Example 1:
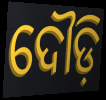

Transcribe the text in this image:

ଦୌଡ଼ି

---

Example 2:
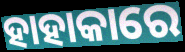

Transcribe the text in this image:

ହାହାକାରେ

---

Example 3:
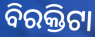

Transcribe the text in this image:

ବିରକ୍ତିଟା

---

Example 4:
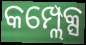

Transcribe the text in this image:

କମ୍ପ୍ଲେକ୍ସ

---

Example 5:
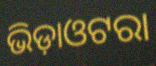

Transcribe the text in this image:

ଭିଡ଼ାଓଟରା